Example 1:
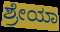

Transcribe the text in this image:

ಶ್ರೇಯಾ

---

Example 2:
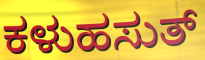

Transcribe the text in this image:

ಕಳುಹಸುತ್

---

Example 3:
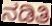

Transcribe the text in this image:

ನಡಿತಿ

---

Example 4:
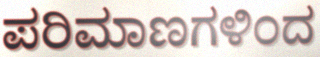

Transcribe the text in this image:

ಪರಿಮಾಣಗಳಿಂದ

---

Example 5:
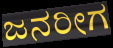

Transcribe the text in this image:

ಜನರೀಗ